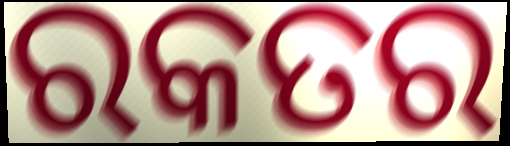
ରକତର